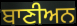
ਬਾਣੀਅਨ